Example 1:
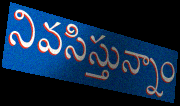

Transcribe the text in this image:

నివసిస్తున్నాం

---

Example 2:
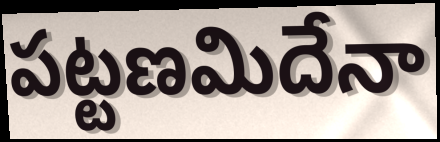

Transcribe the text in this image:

పట్టణమిదేనా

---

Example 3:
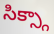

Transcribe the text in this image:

సిక్స్గా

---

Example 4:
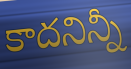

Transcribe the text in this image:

కాదనిన్నీ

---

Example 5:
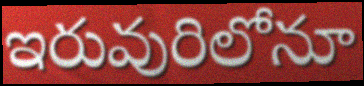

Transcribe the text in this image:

ఇరువురిలోనూ